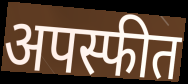
अपस्फीत